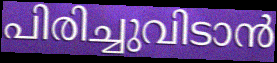
പിരിച്ചുവിടാൻ